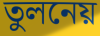
তুলনেয়